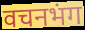
वचनभंग